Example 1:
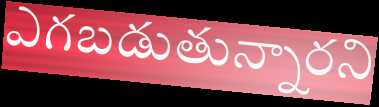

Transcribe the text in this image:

ఎగబడుతున్నారని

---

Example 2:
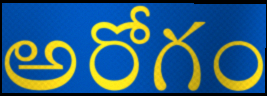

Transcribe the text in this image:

అరోగం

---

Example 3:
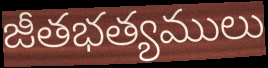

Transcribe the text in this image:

జీతభత్యములు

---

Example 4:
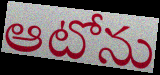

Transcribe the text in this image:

ఆటోను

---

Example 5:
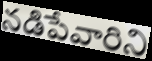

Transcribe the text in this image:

నడిపేవారిని